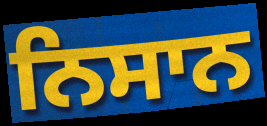
ਨਿਸਾਨ